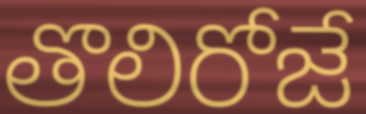
తొలిరోజే